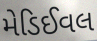
મેડિઈવલ